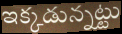
ఇక్కడున్నట్టు